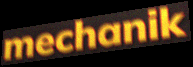
mechanik